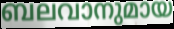
ബലവാനുമായ